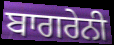
ਬਾਗਰੇਨੀ